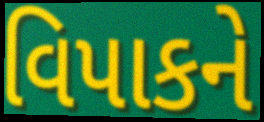
વિપાકને